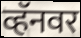
व्हॅनवर